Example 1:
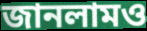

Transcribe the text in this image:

জানলামও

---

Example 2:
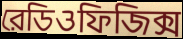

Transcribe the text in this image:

রেডিওফিজিক্স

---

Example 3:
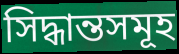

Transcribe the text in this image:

সিদ্ধান্তসমূহ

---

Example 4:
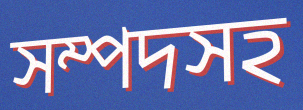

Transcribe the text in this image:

সম্পদসহ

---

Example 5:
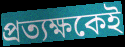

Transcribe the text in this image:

প্রত্যক্ষকেই